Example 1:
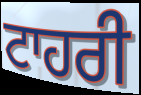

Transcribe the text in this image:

ਟਾਹਰੀ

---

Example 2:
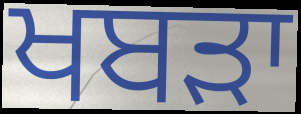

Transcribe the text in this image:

ਖਬੜਾ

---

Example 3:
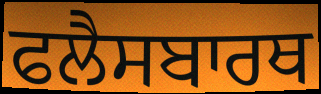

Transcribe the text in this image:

ਫਲੈਸਬਾਰਥ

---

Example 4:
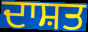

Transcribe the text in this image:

ਦਾਸ਼ਤ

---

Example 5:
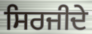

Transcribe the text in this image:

ਸਿਰਜੀਦੇ